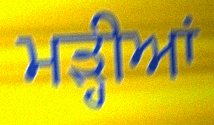
ਮੜ੍ਹੀਆਂ